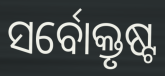
ସର୍ବୋକ୍ତୃଷ୍ଟ